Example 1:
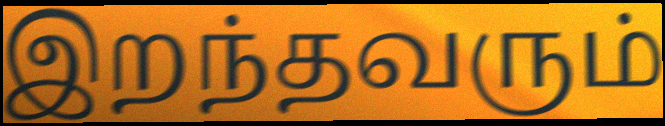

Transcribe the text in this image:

இறந்தவரும்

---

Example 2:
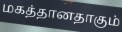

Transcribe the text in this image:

மகத்தானதாகும்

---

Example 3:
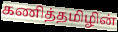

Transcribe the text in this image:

கணித்தமிழின்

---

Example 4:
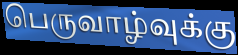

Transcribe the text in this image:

பெருவாழ்வுக்கு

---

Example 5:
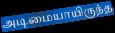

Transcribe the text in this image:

அடிமையாயிருந்த